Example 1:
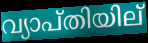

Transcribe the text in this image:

വ്യാപ്തിയില്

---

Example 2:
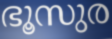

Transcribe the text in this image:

ഭൂസുര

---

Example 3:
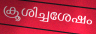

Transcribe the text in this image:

ക്രൂശിച്ചശേഷം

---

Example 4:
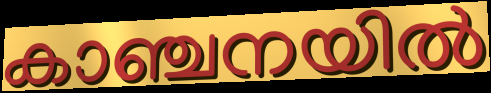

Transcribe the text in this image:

കാഞ്ചനയിൽ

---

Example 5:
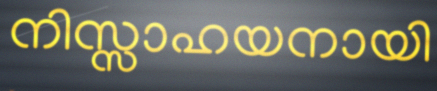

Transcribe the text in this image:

നിസ്സാഹയനായി